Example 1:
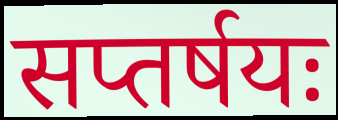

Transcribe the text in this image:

सप्तर्षयः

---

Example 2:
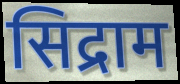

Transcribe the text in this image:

सिद्राम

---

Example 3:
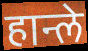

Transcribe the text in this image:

हान्ले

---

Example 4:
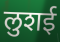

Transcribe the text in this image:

लुशई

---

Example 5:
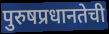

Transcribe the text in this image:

पुरुषप्रधानतेची